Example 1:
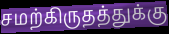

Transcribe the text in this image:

சமற்கிருதத்துக்கு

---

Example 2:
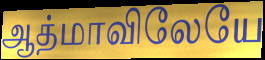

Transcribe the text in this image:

ஆத்மாவிலேயே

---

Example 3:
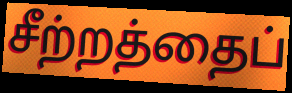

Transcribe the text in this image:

சீற்றத்தைப்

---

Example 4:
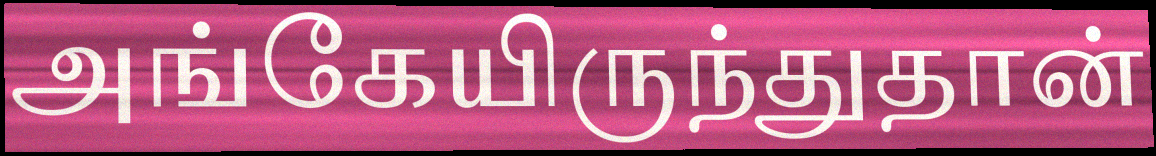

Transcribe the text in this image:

அங்கேயிருந்துதான்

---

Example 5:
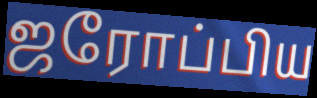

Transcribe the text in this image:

ஜரோப்பிய